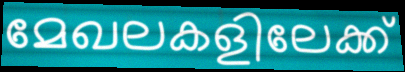
മേഖലകളിലേക്ക്